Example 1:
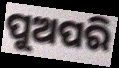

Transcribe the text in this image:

ପୁଅପରି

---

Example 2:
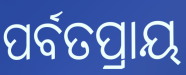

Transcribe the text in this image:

ପର୍ବତପ୍ରାୟ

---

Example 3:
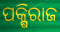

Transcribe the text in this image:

ପକ୍ଷିରାଜ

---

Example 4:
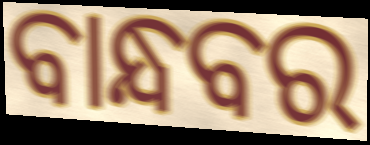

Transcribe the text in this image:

ବାନ୍ଧବର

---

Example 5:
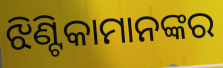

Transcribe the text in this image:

ଝିଣ୍ଟିକାମାନଙ୍କର